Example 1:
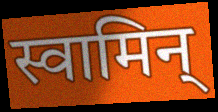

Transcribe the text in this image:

स्वामिन्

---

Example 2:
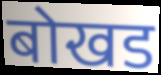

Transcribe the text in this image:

बोखड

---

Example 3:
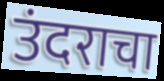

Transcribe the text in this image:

उंदराचा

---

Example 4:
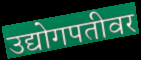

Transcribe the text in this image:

उद्योगपतीवर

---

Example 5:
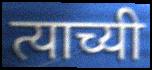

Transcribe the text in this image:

त्याच्यी